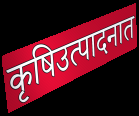
कृषिउत्पादनात